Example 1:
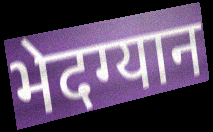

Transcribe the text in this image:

भेदग्यान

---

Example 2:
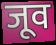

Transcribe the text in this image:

जूव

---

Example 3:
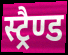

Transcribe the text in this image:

स्ट्रैण्ड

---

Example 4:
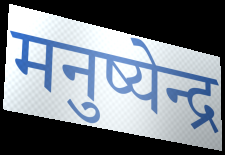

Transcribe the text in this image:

मनुष्येन्द्र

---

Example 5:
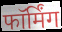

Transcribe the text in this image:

फॉर्मिंग